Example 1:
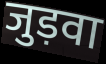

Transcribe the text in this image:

जुड़वा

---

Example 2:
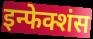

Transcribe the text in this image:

इन्फेक्शंस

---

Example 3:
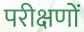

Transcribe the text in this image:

परीक्षणों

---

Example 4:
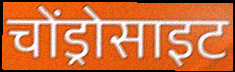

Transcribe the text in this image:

चोंड्रोसाइट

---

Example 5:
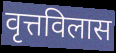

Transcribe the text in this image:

वृत्तविलास